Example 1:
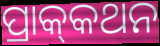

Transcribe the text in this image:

ପ୍ରାକ୍‍କଥନ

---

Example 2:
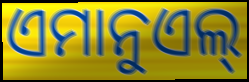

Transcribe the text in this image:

ଏମାନୁଏଲ୍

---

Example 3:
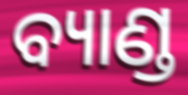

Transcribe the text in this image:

ବ୍ୟାଣ୍ଡ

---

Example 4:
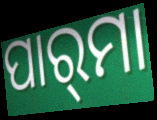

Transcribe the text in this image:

ପାର୍‌ମା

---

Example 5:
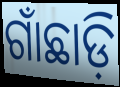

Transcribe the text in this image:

ଗାଁଛାଡ଼ି